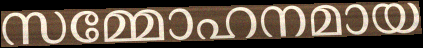
സമ്മോഹനമായ